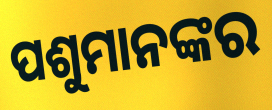
ପଶୁମାନଙ୍କର